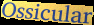
Ossicular